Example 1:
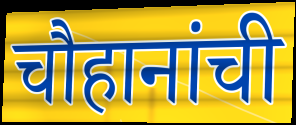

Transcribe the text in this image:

चौहानांची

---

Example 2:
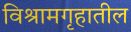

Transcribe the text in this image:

विश्रामगृहातील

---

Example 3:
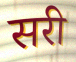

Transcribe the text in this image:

सरी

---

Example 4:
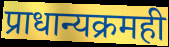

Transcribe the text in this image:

प्राधान्यक्रमही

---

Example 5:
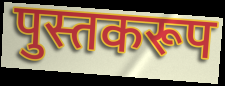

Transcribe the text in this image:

पुस्तकरूप